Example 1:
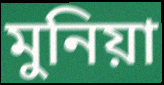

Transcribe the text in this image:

মুনিয়া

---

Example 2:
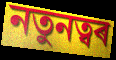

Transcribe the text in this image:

নতুনত্বৰ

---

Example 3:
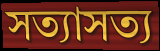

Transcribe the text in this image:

সত্যাসত্য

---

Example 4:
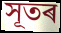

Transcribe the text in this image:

সূতৰ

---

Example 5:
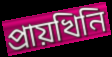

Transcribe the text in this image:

প্ৰায়খিনি